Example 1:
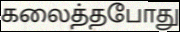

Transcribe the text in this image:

கலைத்தபோது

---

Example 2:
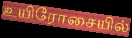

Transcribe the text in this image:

உயிரோசையில்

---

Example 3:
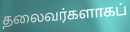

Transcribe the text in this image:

தலைவர்களாகப்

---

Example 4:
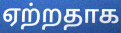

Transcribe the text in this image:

ஏற்றதாக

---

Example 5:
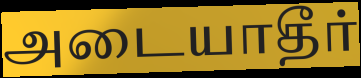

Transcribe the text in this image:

அடையாதீர்